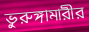
ভুরুঙ্গামারীর